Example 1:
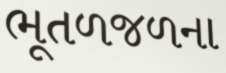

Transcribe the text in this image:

ભૂતળજળના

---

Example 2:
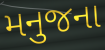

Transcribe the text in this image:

મનુજના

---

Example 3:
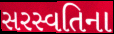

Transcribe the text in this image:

સરસ્વતિના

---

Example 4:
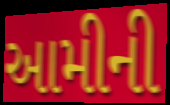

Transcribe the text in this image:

આમીની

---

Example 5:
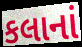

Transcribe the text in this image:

કલાનાં